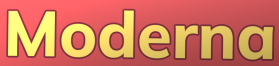
Moderna